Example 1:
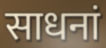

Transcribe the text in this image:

साधनां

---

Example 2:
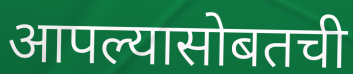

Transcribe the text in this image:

आपल्यासोबतची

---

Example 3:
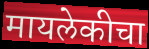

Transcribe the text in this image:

मायलेकीचा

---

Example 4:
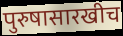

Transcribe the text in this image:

पुरुषासारखीच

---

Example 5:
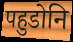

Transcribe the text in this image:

पहुडोनि